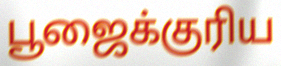
பூஜைக்குரிய